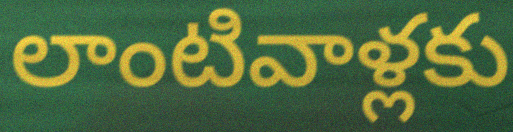
లాంటివాళ్లకు